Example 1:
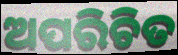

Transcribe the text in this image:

ଅପରିଚିତ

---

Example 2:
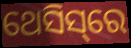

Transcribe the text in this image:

ଥେସିସ୍‌ରେ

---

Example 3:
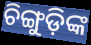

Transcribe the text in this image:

ଚିଙ୍ଗୁଡ଼ିଙ୍କ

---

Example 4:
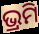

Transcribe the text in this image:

ଭ୍ରମି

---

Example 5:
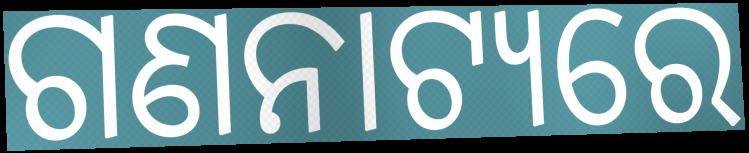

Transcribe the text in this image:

ଗଣନାଟ୍ୟରେ